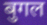
बुगल